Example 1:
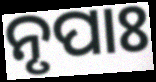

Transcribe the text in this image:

ନୃପାଃ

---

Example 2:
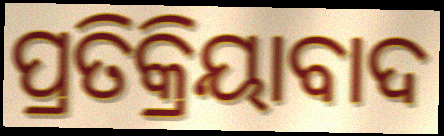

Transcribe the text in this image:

ପ୍ରତିକ୍ରିୟାବାଦ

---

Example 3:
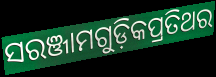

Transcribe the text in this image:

ସରଞ୍ଜାମଗୁଡ଼ିକପ୍ରତିଥର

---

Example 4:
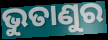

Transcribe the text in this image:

ଭୁତାଣୁର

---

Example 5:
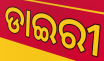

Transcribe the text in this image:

ଡାଇରୀ